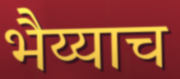
भैय्याच